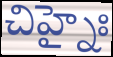
చిహ్నైః